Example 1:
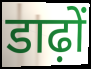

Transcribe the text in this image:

डाढ़ों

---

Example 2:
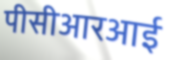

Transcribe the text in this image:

पीसीआरआई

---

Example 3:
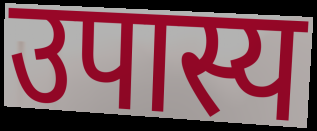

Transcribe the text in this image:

उपास्य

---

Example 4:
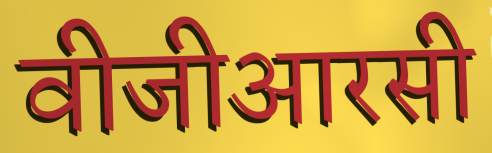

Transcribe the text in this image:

वीजीआरसी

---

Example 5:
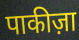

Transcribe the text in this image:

पाकीज़ा